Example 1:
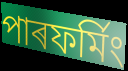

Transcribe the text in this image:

পাৰফৰ্মিং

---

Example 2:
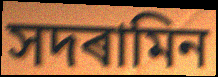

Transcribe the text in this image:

সদৰামিন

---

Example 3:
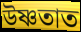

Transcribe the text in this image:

উষ্ণতাত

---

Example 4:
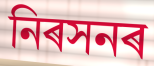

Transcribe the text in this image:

নিৰসনৰ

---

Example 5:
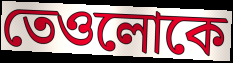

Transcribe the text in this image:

তেওলোকে